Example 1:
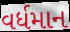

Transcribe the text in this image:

વર્ધમાન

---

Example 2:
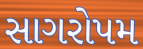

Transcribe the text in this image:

સાગરોપમ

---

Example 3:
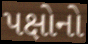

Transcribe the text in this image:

પક્ષોનો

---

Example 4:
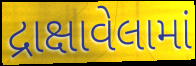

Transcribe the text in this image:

દ્રાક્ષાવેલામાં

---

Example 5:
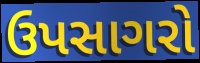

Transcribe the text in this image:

ઉપસાગરો